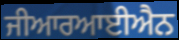
ਜੀਆਰਆਈਐਨ